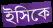
ইসিকে